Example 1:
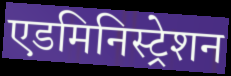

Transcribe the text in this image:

एडमिनिस्ट्रेशन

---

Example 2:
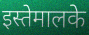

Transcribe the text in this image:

इस्तेमालके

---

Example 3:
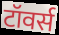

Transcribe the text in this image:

टॉवर्स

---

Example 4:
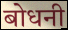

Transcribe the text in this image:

बोधनी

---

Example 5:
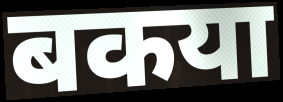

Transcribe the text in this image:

बकया